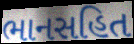
ભાનસહિત